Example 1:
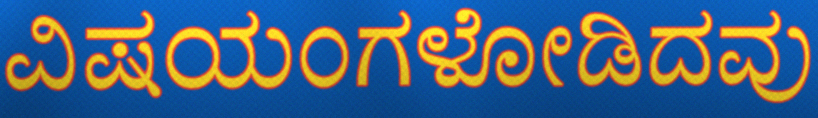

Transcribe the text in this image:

ವಿಷಯಂಗಳೋಡಿದವು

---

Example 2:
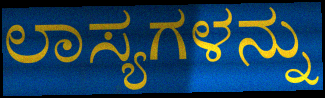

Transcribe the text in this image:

ಲಾಸ್ಯಗಳನ್ನು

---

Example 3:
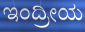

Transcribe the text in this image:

ಇಂದ್ರೀಯ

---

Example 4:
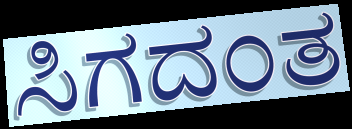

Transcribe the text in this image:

ಸಿಗದಂತ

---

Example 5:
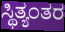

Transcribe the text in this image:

ಸ್ಥಿತ್ಯಂತರ